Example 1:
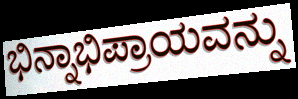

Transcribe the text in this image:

ಭಿನ್ನಾಭಿಪ್ರಾಯವನ್ನು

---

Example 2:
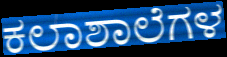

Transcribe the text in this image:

ಕಲಾಶಾಲೆಗಳ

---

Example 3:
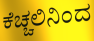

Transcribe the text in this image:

ಕೆಚ್ಚಲಿನಿಂದ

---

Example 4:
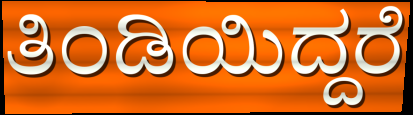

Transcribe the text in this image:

ತಿಂಡಿಯಿದ್ದರೆ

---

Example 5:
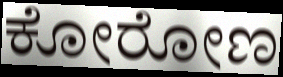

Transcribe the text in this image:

ಕೋರೋಣ